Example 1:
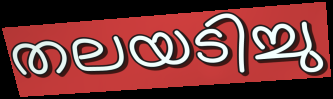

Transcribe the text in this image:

തലയടിച്ചു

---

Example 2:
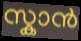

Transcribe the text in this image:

സ്കാൻ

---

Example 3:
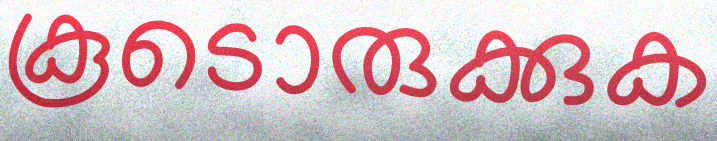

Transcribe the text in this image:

കൂടൊരുക്കുക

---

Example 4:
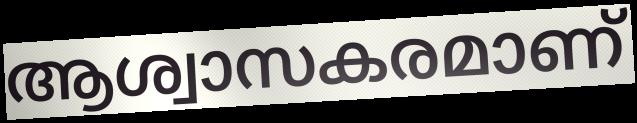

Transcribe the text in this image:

ആശ്വാസകരമാണ്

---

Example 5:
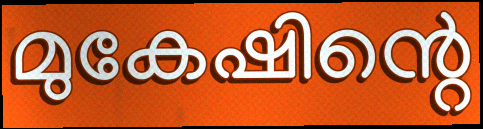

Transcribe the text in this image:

മുകേഷിന്റെ